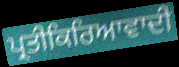
ਪ੍ਰਤੀਕਿਰਿਆਵਾਦੀ